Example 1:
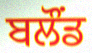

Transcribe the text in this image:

ਬਲੌਂਡ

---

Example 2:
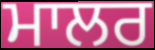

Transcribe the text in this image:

ਮਾਲਰ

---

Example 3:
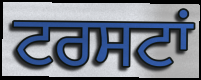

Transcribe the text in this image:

ਟਰਸਟਾਂ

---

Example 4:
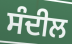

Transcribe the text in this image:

ਸੰਦੀਲ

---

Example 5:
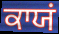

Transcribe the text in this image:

ਕਾਯਂ